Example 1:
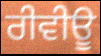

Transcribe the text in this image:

ਰੀਵੀਊ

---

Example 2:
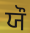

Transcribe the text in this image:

ਯੌ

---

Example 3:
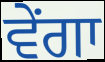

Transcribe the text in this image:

ਵੇਂਗਾ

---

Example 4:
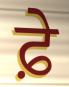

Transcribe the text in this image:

ਫ਼ੇ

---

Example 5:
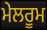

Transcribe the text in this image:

ਮੇਲਰੂਮ